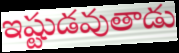
ఇష్టుడవుతాడు